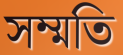
সম্মতি